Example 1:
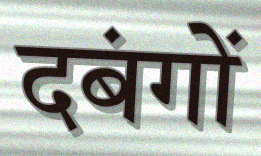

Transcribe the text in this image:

दबंगों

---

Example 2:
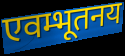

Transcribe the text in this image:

एवम्भूतनय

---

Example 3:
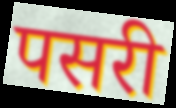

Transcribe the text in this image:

पसरी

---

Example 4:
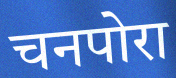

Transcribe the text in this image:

चनपोरा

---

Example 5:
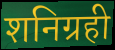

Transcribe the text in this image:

शनिग्रही